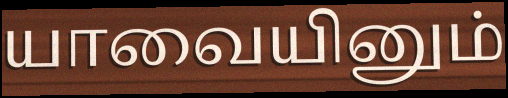
யாவையினும்